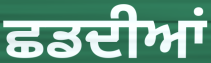
ਛਡਦੀਆਂ